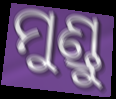
ମୁଣ୍ଡୁ